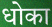
धोका